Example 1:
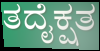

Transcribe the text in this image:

ತದೈಕ್ಷತ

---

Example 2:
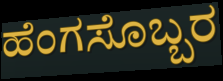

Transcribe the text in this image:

ಹೆಂಗಸೊಬ್ಬರ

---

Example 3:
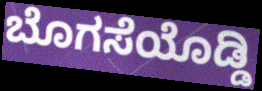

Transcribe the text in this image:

ಬೊಗಸೆಯೊಡ್ಡಿ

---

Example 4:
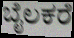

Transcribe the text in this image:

ಬೈಲಕರೆ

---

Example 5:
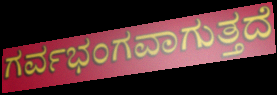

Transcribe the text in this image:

ಗರ್ವಭಂಗವಾಗುತ್ತದೆ